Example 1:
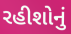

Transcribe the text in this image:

રહીશોનું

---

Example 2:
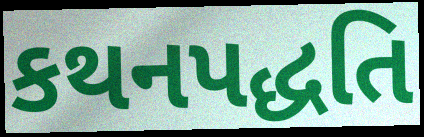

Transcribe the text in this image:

કથનપદ્ધતિ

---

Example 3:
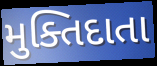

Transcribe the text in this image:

મુક્તિદાતા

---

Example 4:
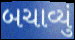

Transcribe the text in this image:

બચાવ્યું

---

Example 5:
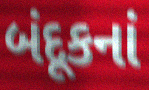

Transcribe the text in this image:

બંદૂકનાં